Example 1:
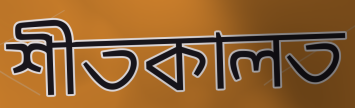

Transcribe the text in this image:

শীতকালত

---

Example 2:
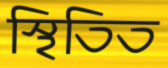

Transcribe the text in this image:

স্থিতিত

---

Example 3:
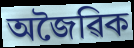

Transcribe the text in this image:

অজৈৱিক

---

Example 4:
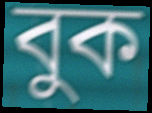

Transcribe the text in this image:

বুক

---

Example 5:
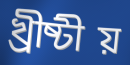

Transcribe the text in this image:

খ্ৰীষ্টীয়